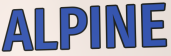
ALPINE